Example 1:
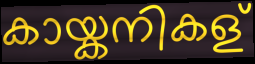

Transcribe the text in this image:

കായ്കനികള്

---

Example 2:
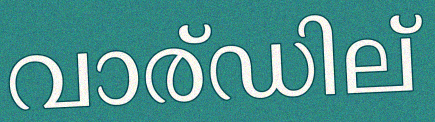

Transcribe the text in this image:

വാര്ഡില്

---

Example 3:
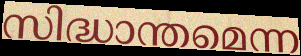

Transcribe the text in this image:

സിദ്ധാന്തമെന്ന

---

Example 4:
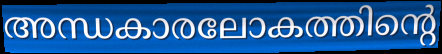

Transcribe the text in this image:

അന്ധകാരലോകത്തിന്റെ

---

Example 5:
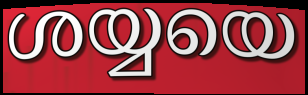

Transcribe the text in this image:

ശയ്യയെ